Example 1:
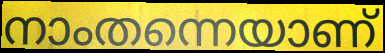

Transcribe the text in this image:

നാംതന്നെയാണ്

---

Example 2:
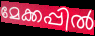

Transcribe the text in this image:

മേക്കപ്പിൽ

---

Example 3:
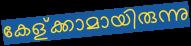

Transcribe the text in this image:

കേള്ക്കാമായിരുന്നു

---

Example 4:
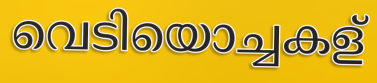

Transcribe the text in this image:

വെടിയൊച്ചകള്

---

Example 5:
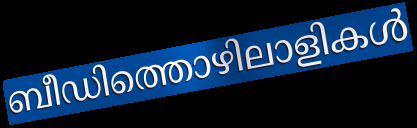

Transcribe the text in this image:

ബീഡിത്തൊഴിലാളികൾ